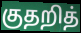
குதறித்